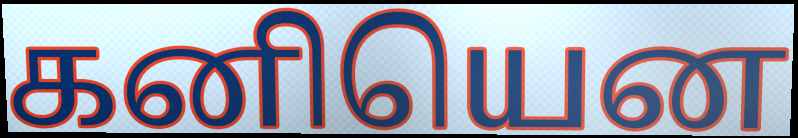
கனியென